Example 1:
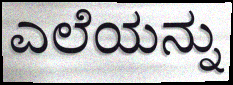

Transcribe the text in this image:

ಎಲೆಯನ್ನು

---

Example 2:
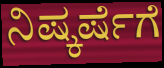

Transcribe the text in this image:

ನಿಷ್ಕರ್ಷೆಗೆ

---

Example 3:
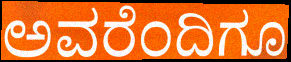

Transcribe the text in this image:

ಅವರೆಂದಿಗೂ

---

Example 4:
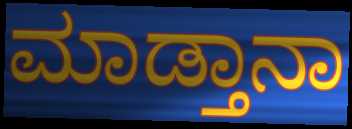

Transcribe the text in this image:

ಮಾಡ್ತಾನಾ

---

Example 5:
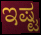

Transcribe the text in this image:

ಇಷ್ಟ